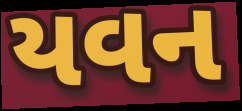
યવન